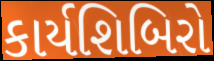
કાર્યશિબિરો